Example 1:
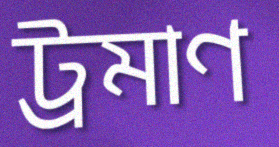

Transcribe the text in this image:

ট্রমাণ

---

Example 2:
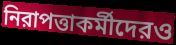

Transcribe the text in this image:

নিরাপত্তাকর্মীদেরও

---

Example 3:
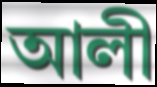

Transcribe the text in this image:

আলী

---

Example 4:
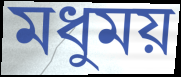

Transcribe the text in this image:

মধুময়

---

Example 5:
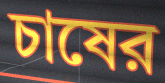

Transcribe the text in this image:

চাষের